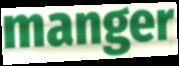
manger